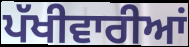
ਪੱਖੀਵਾਰੀਆਂ